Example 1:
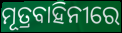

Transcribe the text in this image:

ମୂତ୍ରବାହିନୀରେ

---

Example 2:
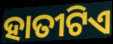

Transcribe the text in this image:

ହାତୀଟିଏ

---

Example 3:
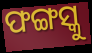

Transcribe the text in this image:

ଫଙ୍ଗସ୍କୁ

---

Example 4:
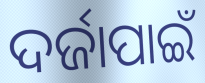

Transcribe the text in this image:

ଦର୍ଜାପାଇଁ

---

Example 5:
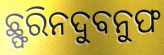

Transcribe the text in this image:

ଛ୍ଫରିନଦୁବନୁଫ